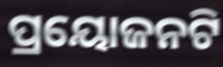
ପ୍ରୟୋଜନଟି